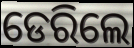
ଡେରିଲେ